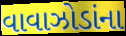
વાવાઝોડાંના